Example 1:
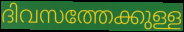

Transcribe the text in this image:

ദിവസത്തേക്കുള്ള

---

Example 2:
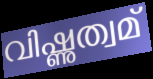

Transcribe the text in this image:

വിഷ്ണുത്വമ്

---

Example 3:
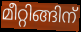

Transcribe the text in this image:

മീറ്റിങ്ങിന്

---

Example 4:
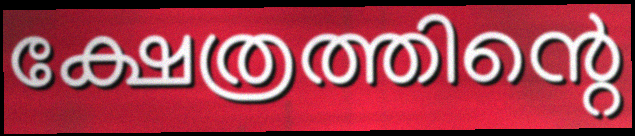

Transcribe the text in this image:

ക്ഷേത്രത്തിന്റെ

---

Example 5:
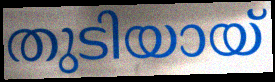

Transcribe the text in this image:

തുടിയായ്